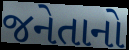
જનેતાનો